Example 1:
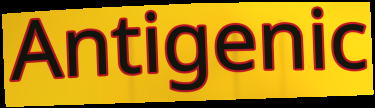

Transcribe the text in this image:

Antigenic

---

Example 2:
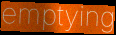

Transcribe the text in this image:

emptying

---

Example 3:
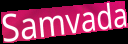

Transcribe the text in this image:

Samvada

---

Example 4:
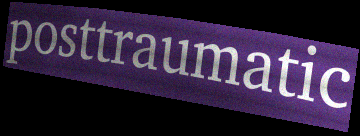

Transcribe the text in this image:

posttraumatic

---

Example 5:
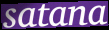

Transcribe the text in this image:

satana